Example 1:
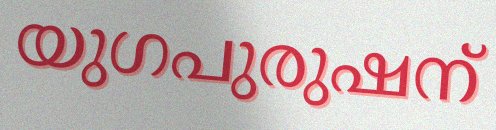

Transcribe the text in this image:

യുഗപുരുഷന്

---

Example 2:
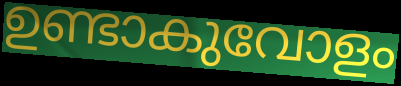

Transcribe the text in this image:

ഉണ്ടാകുവോളം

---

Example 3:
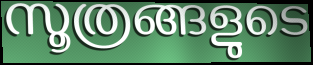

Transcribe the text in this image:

സൂത്രങ്ങളുടെ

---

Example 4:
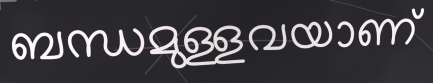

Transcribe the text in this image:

ബന്ധമുള്ളവയാണ്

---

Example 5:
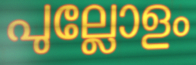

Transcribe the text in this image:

പുല്ലോളം